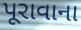
પૂરાવાના